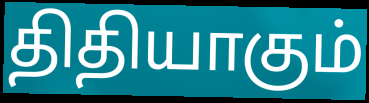
திதியாகும்